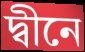
দ্বীনে